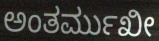
ಅಂತರ್ಮುಖೀ